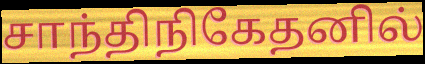
சாந்திநிகேதனில்